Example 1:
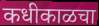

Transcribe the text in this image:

कधीकाळचा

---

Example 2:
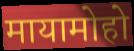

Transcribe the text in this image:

मायामोहो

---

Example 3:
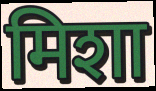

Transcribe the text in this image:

मिशा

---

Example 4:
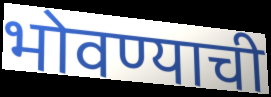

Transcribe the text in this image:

भोवण्याची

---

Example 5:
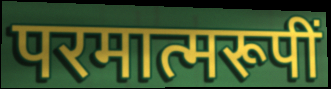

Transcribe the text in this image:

परमात्मरूपीं